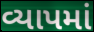
વ્યાપમાં